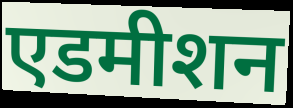
एडमीशन